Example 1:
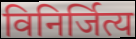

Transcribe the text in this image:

विनिर्जित्य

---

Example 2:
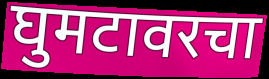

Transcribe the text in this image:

घुमटावरचा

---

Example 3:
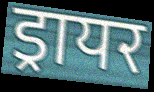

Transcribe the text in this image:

ड्रायर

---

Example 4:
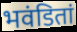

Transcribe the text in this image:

भवंडितां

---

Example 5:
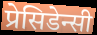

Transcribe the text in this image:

प्रेसिडेन्सी